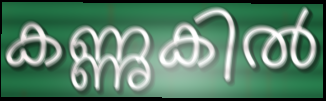
കണ്ണുകിൽ